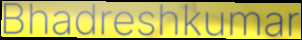
Bhadreshkumar